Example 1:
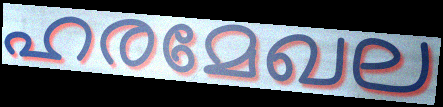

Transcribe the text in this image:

ഹരമേഖല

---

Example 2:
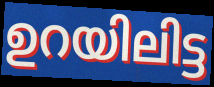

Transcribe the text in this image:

ഉറയിലിട്ട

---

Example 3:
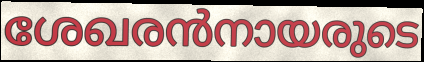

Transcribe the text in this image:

ശേഖരൻനായരുടെ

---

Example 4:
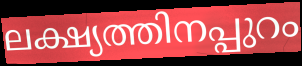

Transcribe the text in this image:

ലക്ഷ്യത്തിനപ്പുറം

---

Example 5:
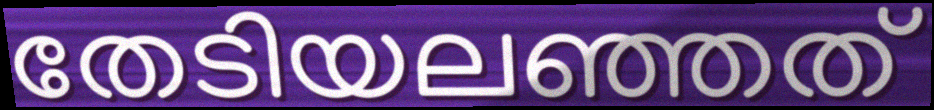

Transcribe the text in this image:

തേടിയലഞ്ഞത്